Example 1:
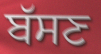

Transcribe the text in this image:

ਬੱਸਣ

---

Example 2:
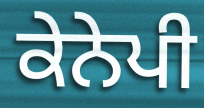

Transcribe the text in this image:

ਕੇਨੇਪੀ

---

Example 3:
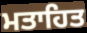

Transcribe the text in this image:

ਮਤਾਹਿਤ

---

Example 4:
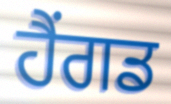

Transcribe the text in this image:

ਹੈਂਗਡ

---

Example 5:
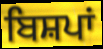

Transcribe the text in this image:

ਬਿਸ਼ਪਾਂ